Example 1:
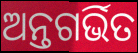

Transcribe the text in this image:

ଅନ୍ତଗର୍ଭିତ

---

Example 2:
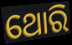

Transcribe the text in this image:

ଥୋରି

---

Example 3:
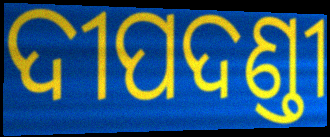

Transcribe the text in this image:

ଦୀପଦଣ୍ଡୀ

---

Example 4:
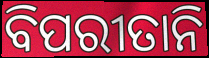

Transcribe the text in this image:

ବିପରୀତାନି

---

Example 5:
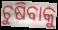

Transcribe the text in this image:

ଚୁଷିବାକୁ